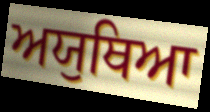
ਅਯੁਥਿਆ